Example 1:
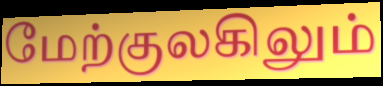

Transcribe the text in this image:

மேற்குலகிலும்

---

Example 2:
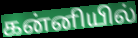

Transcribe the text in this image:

கன்னியில்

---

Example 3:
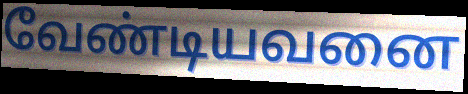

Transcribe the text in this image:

வேண்டியவனை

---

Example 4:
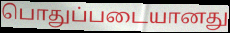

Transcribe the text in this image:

பொதுப்படையானது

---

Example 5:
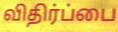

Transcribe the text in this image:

விதிர்ப்பை